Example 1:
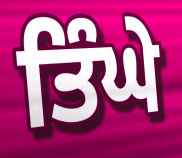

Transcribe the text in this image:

ਤਿੰਘੇ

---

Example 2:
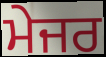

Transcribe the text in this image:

ਮੇਜਰ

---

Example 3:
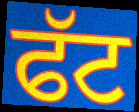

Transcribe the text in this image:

ਫੱਟ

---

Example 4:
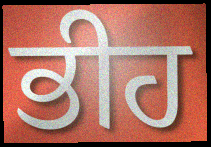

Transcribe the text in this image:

ਭੀਹ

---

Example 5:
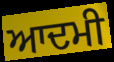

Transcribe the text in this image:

ਆਦਮੀ